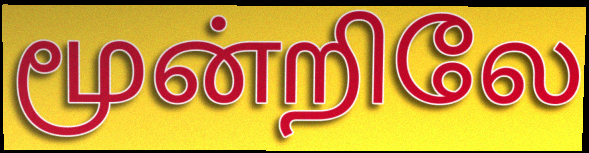
மூன்றிலே